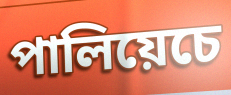
পালিয়েচে